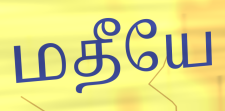
மதீயே